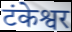
टंकेश्वर